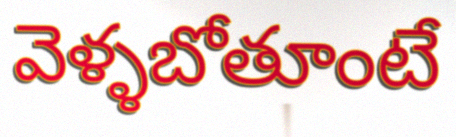
వెళ్ళబోతూంటే